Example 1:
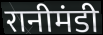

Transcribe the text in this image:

रानीमंडी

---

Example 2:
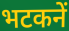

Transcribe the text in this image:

भटकनें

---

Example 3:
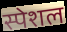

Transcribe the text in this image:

स्पेशल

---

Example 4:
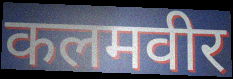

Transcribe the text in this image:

कलमवीर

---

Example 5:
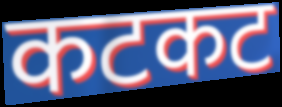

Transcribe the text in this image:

कटकट